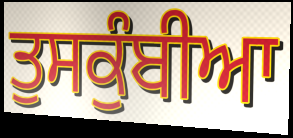
ਤੁਸਕੁੰਬੀਆ